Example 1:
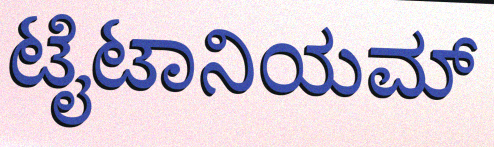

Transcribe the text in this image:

ಟೈಟಾನಿಯಮ್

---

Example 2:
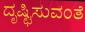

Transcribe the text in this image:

ದೃಷ್ಟಿಸುವಂತೆ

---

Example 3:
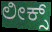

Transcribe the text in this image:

ಲೀಕ್ಸ್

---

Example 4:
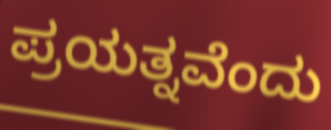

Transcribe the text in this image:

ಪ್ರಯತ್ನವೆಂದು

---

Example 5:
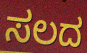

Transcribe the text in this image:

ಸಲದ